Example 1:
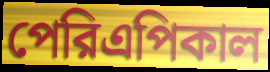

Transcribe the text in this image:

পেরিএপিকাল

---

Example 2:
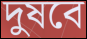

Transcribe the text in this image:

দুষবে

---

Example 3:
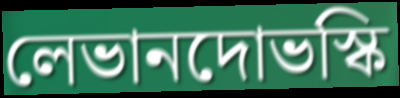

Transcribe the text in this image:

লেভানদোভস্কি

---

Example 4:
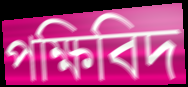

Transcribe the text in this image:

পক্ষিবিদ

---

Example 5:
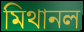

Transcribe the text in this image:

মিথানল